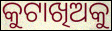
କୁଟାଖିଅକୁ